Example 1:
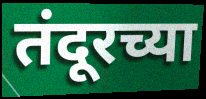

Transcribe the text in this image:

तंदूरच्या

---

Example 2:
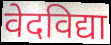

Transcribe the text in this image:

वेदविद्या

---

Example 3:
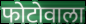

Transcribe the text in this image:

फोटोवाला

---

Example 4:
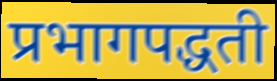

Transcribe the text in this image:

प्रभागपद्धती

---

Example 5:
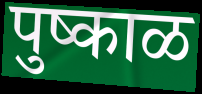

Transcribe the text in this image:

पुष्काळ